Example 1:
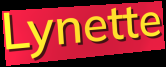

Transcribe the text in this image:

Lynette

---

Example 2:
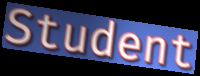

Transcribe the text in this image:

Student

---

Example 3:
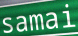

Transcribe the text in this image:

samai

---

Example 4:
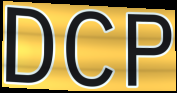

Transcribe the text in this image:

DCP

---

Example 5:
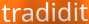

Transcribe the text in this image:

tradidit